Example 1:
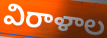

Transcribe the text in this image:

విరాళాల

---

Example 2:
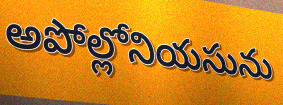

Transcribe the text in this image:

అపోల్లోనియసును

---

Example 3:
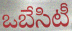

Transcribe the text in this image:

ఒబేసిటీ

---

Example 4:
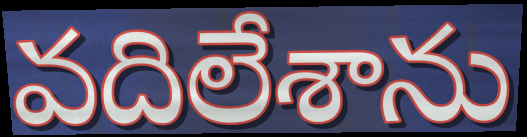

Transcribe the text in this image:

వదిలేశాను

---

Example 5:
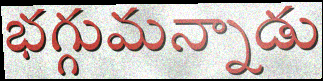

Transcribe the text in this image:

భగ్గుమన్నాడు